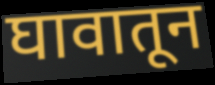
घावातून